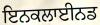
ਇਨਕਲਾਈਨਡ